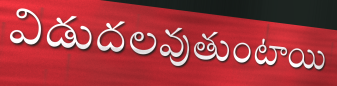
విడుదలవుతుంటాయి